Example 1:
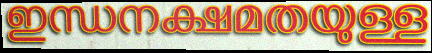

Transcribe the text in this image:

ഇന്ധനക്ഷമതയുള്ള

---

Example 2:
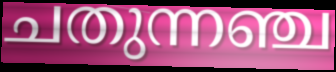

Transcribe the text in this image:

ചതുന്നഞ്ച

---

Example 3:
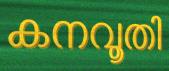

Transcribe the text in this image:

കനവൂതി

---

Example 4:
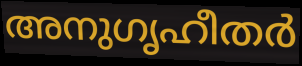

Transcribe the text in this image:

അനുഗൃഹീതർ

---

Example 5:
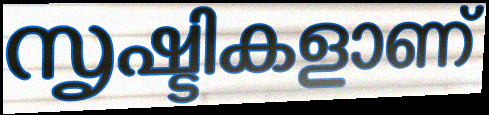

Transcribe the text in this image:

സൃഷ്ടികളാണ്